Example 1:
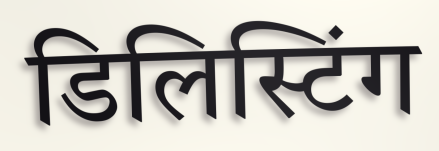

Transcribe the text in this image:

डिलिस्टिंग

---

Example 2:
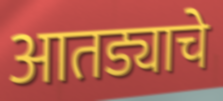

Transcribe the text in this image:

आतड्याचे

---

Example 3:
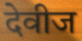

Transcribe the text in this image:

देवीज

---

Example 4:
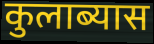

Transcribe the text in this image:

कुलाब्यास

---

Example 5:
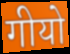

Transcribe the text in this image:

गीयो